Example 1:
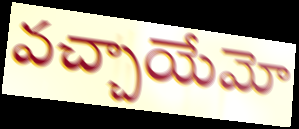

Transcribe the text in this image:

వచ్చాయేమో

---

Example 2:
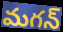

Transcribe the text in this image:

మగన్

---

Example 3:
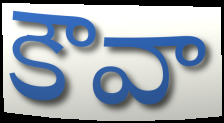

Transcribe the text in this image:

కౌవా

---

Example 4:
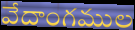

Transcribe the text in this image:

వేదాంగముల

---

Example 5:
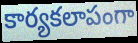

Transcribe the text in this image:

కార్యకలాపంగా